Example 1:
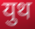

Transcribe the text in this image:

युथ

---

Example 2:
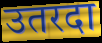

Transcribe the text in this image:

उतरदा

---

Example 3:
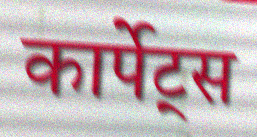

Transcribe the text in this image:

कार्पेट्स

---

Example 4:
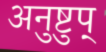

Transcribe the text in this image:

अनुष्टुप्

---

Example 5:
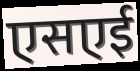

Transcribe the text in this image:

एसएई